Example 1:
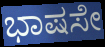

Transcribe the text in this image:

ಭಾಷಸೇ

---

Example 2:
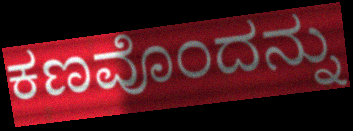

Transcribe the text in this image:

ಕಣವೊಂದನ್ನು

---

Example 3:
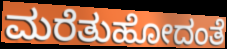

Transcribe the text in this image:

ಮರೆತುಹೋದಂತೆ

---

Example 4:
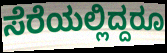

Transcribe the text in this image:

ಸೆರೆಯಲ್ಲಿದ್ದರೂ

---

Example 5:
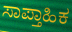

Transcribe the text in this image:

ಸಾಪ್ತಾಹಿಕ